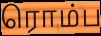
ரொம்ப